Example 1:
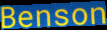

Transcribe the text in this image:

Benson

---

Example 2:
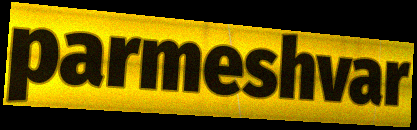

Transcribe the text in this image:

parmeshvar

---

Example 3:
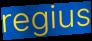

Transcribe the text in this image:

regius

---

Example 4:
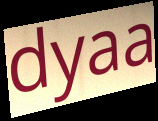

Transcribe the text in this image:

dyaa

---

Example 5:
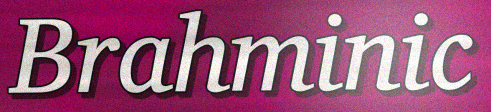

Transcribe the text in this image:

Brahminic